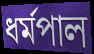
ধৰ্মপাল